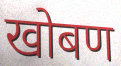
खोबण